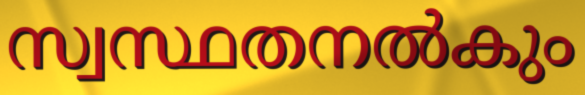
സ്വസ്ഥതനൽകും